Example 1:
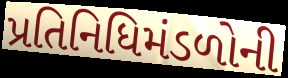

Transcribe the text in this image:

પ્રતિનિધિમંડળોની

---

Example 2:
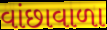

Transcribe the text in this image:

વાંછાવાળા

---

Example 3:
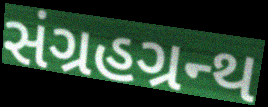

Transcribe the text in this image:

સંગ્રહગ્રન્થ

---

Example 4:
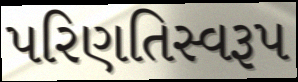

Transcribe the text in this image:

પરિણતિસ્વરૂપ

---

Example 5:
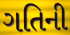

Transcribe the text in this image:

ગતિની